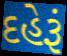
દહેરૂં